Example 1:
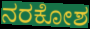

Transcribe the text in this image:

ನರಕೋಶ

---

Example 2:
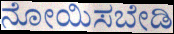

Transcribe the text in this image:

ನೋಯಿಸಬೇಡಿ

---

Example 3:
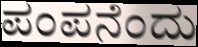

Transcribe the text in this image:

ಪಂಪನೆಂದು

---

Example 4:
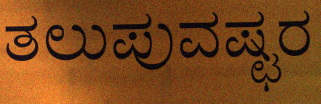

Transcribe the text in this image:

ತಲುಪುವಷ್ಟರ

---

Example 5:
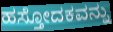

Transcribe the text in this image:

ಹಸ್ತೋದಕವನ್ನು